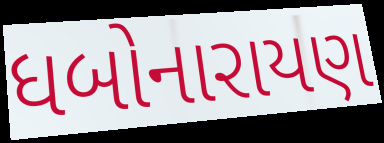
ધબોનારાયણ